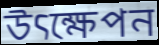
উৎক্ষেপন